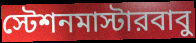
স্টেশনমাস্টারবাবু